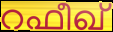
റഫീഖ്